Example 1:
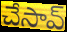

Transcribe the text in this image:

చేసావ్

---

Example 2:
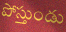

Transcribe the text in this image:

పోస్తుండు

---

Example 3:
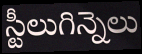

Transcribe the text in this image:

స్టీలుగిన్నెలు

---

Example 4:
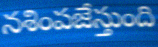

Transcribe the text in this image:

నశింపజేస్తుంది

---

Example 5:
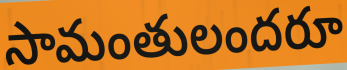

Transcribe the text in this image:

సామంతులందరూ